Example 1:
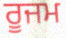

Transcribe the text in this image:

ਰੂਜਮ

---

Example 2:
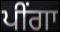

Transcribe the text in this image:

ਪੀਂਗਾ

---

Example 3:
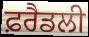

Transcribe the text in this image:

ਫ਼ਰੈਡਲੀ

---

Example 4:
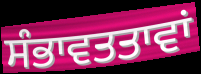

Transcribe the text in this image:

ਸੰਭਾਵਤਤਾਵਾਂ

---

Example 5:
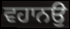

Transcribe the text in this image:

ਵਹਾਨਉ